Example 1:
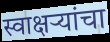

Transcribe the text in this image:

स्वाक्षऱ्यांचा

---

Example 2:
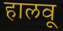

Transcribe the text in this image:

हालवू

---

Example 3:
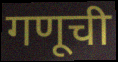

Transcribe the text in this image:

गणूची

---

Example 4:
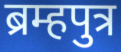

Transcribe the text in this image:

ब्रम्हपुत्र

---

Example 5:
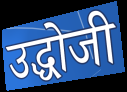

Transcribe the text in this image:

उद्धोजी